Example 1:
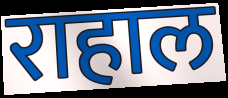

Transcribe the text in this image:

राहाल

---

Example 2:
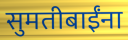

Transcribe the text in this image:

सुमतीबाईंना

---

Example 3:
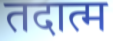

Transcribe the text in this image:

तदात्म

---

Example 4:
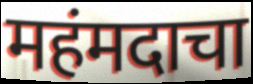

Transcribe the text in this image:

महंमदाचा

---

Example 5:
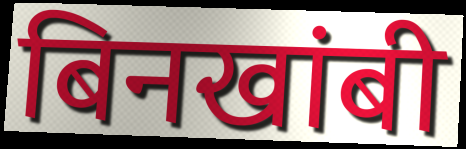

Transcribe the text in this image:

बिनखांबी